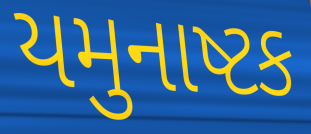
યમુનાષ્ટક